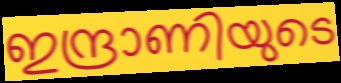
ഇന്ദ്രാണിയുടെ